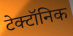
टेक्टॉनिक